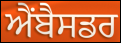
ਐਂਬੈਸਡਰ